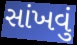
સાંખવું